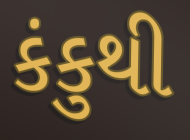
કંકુથી